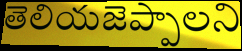
తెలియజెప్పాలని